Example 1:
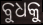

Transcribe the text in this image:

ବୁଧକୁ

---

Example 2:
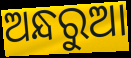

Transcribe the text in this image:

ଅନ୍ଧରୁଆ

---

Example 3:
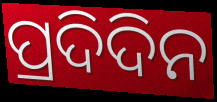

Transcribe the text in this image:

ପ୍ରଦିଦିନ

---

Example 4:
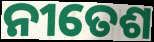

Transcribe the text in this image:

ନୀତେଶ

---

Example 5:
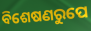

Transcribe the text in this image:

ବିଶେଷଣରୁପେ